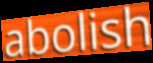
abolish